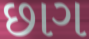
છાગ